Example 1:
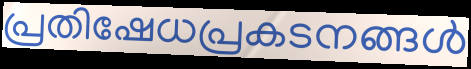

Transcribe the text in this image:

പ്രതിഷേധപ്രകടനങ്ങൾ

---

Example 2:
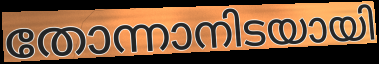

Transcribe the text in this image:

തോന്നാനിടയായി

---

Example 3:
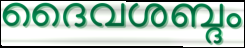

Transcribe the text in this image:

ദൈവശബ്ദം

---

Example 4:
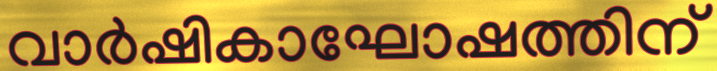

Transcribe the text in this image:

വാർഷികാഘോഷത്തിന്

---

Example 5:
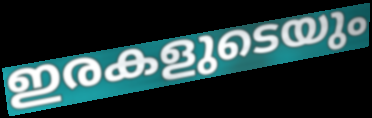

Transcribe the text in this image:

ഇരകളുടെയും